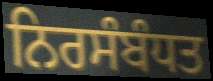
ਨਿਰਸੰਬੰਧਤ